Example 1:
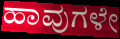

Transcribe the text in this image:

ಹಾವುಗಳೇ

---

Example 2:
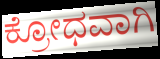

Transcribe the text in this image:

ಕ್ರೋಧವಾಗಿ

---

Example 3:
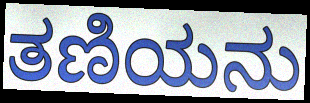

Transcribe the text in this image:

ತಣಿಯನು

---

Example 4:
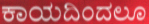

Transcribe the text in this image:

ಕಾಯದಿಂದಲೂ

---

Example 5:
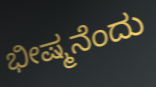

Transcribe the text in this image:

ಭೀಷ್ಮನೆಂದು